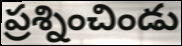
ప్రశ్నించిండు